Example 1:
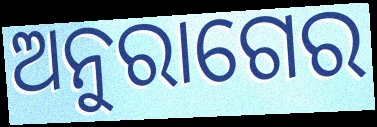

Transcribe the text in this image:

ଅନୁରାଗେର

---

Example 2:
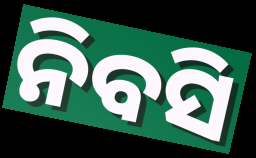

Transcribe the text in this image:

ନିବସି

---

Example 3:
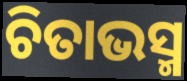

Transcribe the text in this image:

ଚିତାଭସ୍ମ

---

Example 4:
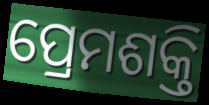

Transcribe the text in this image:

ପ୍ରେମଶକ୍ତି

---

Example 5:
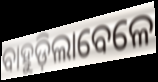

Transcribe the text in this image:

ବାହୁଡ଼ିଲାବେଳେ